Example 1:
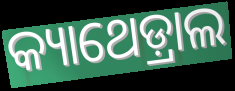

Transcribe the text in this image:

କ୍ୟାଥେଡ଼୍ରାଲ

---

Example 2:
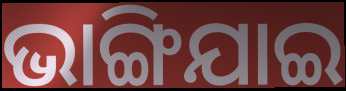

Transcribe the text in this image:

ଭାଙ୍ଗିଯାଇ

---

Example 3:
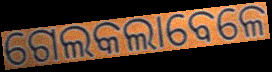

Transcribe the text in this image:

ଗେଲକଲାବେଳେ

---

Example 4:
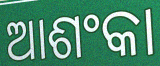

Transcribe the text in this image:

ଆଶଂକା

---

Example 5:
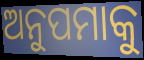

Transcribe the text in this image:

ଅନୁପମାକୁ